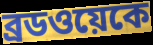
ব্রডওয়েকে